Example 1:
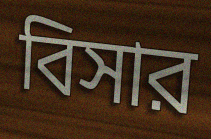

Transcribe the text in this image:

বিসার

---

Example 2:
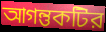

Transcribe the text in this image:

আগন্তুকটির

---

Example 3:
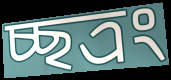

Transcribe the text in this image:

চ্ছত্রং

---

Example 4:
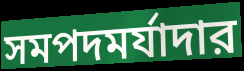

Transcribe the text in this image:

সমপদমর্যাদার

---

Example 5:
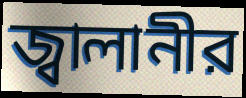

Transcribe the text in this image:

জ্বালানীর